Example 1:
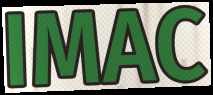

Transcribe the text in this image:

IMAC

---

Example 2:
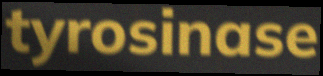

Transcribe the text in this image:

tyrosinase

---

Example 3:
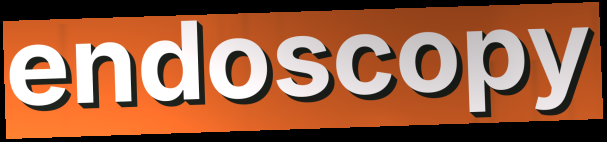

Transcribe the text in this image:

endoscopy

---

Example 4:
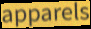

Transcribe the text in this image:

apparels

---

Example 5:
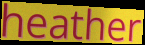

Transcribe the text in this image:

heather